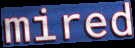
mired